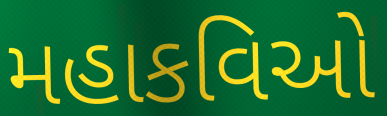
મહાકવિઓ